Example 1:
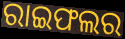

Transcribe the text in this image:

ରାଇଫଲର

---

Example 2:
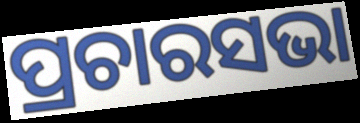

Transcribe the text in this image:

ପ୍ରଚାରସଭା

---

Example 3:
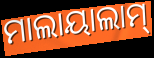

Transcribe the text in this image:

ମାଲାୟାଲାମ୍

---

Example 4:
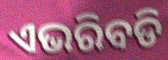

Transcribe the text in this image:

ଏଭରିବଡି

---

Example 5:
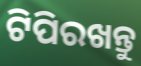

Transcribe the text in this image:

ଟିପିରଖନ୍ତୁ